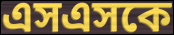
এসএসকে